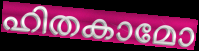
ഹിതകാമോ